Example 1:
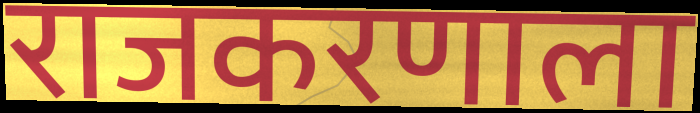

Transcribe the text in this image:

राजकरणाला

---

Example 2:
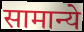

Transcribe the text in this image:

सामान्ये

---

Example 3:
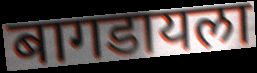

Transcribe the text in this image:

बागडायला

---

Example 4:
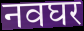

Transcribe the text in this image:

नवघर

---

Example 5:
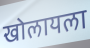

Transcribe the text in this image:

खोलायला